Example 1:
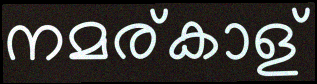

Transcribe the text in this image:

നമര്കാള്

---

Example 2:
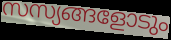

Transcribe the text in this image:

സസ്യങ്ങളോടും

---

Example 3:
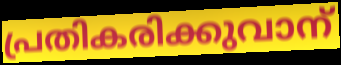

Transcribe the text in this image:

പ്രതികരിക്കുവാന്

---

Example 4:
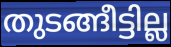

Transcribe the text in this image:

തുടങ്ങീട്ടില്ല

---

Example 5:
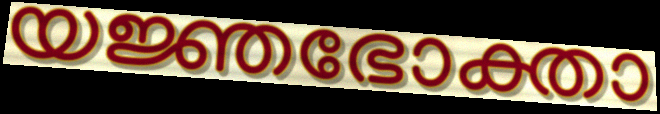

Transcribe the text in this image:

യജ്ഞഭോക്താ